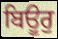
ਬਿਊਰੁ